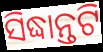
ସିଦ୍ଧାନ୍ତଟି